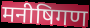
मनीषिगण